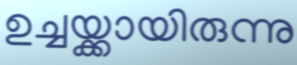
ഉച്ചയ്ക്കായിരുന്നു